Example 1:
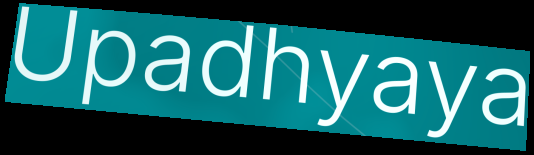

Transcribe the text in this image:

Upadhyaya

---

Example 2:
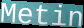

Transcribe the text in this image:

Metin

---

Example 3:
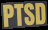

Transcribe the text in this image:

PTSD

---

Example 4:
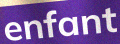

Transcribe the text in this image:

enfant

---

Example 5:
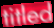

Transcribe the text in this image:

titled